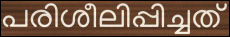
പരിശീലിപ്പിച്ചത്